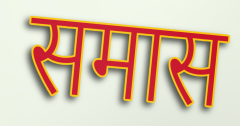
समास